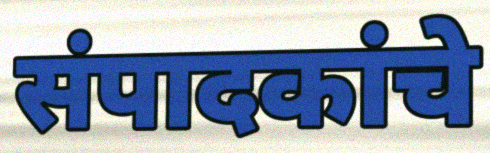
संपादकांचे